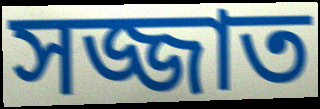
সজ্জাত